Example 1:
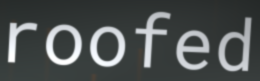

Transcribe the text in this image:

roofed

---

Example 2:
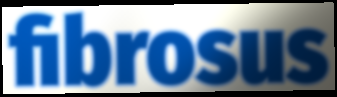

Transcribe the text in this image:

fibrosus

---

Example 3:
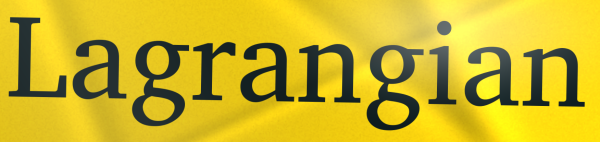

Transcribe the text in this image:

Lagrangian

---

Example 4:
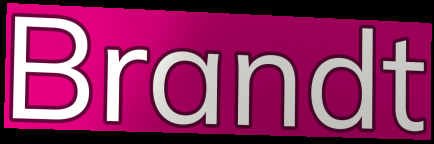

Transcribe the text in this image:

Brandt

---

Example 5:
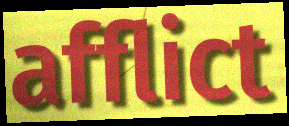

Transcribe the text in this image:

afflict